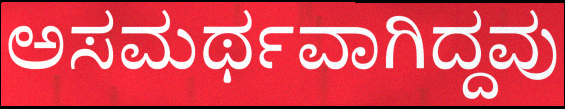
ಅಸಮರ್ಥವಾಗಿದ್ದವು